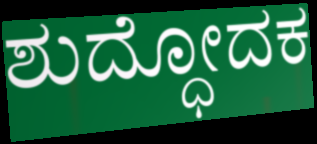
ಶುದ್ಧೋದಕ